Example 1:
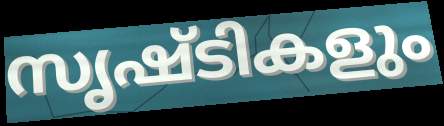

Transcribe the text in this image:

സൃഷ്ടികളും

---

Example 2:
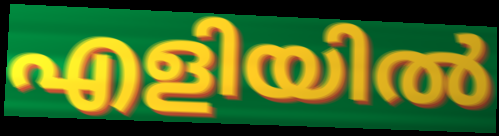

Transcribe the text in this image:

എളിയിൽ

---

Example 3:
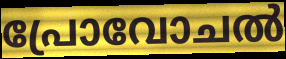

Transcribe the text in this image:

പ്രോവോചൽ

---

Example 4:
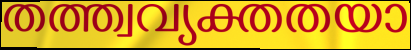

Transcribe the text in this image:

തത്ത്വവ്യക്തതയാ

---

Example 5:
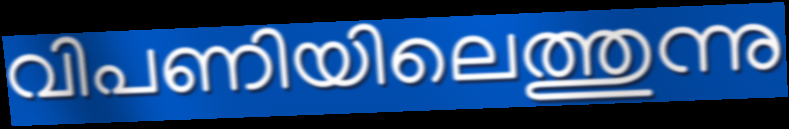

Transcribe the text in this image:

വിപണിയിലെത്തുന്നു